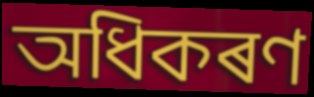
অধিকৰণ